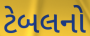
ટેબલનો